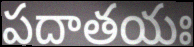
పదాతయః